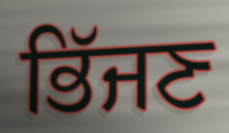
ਭਿੱਜਣ